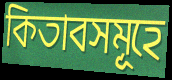
কিতাবসমূহে